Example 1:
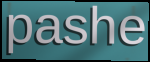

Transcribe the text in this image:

pashe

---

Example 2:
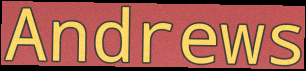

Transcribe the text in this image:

Andrews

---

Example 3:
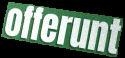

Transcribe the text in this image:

offerunt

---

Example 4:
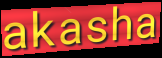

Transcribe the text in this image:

akasha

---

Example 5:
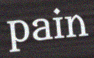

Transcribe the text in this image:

pain